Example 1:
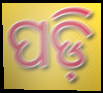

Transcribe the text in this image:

ପଡ଼ି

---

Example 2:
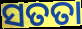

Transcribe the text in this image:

ସତତା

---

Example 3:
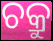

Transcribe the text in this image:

ଚକ୍ରୁ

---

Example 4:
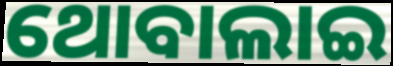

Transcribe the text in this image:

ଥୋବାଲାଇ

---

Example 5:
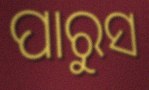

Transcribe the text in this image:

ପାରୁସ